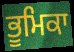
ਭੂਮਿਕਾ